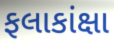
ફલાકાંક્ષા